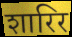
शारिर